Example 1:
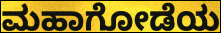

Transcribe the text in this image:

ಮಹಾಗೋಡೆಯ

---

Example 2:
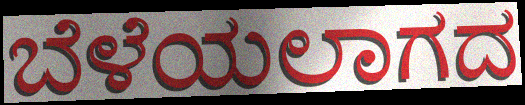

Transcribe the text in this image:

ಬೆಳೆಯಲಾಗದ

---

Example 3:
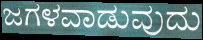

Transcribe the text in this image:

ಜಗಳವಾಡುವುದು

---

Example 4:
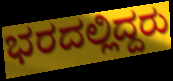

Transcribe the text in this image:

ಭರದಲ್ಲಿದ್ದರು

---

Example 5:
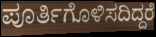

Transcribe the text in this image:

ಪೂರ್ತಿಗೊಳಿಸದಿದ್ದರೆ